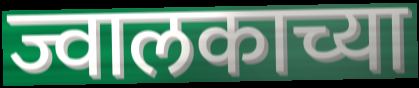
ज्वालकाच्या